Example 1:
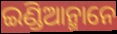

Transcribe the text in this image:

ଇଣ୍ଡିଆନ୍ମାନେ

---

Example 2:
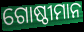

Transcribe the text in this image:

ଗୋଷ୍ଠୀମାନ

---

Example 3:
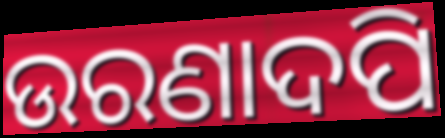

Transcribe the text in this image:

ଉରଣାଦପି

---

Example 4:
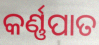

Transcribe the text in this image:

କର୍ଣ୍ଣପାତ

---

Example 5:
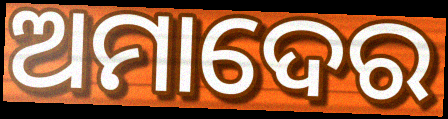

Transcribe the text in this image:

ଅମାଦେର